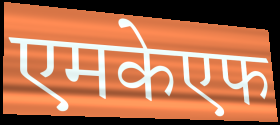
एमकेएफ